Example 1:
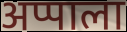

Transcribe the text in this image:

अप्पाला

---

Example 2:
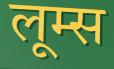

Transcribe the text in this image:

लूम्स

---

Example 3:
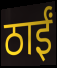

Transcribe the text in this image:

ठाईं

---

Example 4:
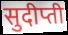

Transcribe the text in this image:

सुदीप्ती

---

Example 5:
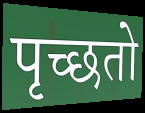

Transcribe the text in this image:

पृच्छतो